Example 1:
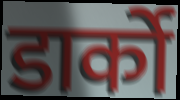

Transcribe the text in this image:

डार्को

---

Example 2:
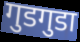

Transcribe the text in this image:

गुडगुडा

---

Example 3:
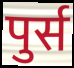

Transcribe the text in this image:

पुर्स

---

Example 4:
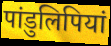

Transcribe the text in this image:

पांडुलिपियां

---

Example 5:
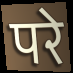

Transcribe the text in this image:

परे